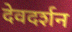
देवदर्शन